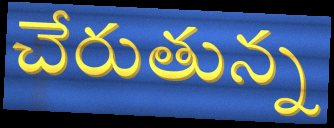
చేరుతున్న